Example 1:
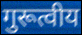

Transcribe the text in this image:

गुरूत्वीय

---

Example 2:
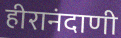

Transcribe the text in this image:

हीरानंदाणी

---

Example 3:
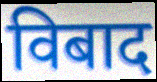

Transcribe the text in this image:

विबाद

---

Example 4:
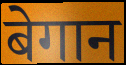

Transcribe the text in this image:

बेगान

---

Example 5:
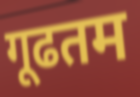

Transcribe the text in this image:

गूढतम